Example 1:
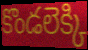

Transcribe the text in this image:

కొండలెక్కి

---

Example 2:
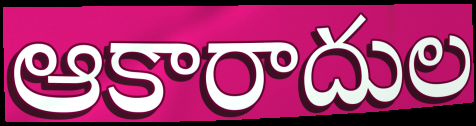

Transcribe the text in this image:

ఆకారాదుల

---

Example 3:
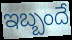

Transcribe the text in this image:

ఇబ్బందే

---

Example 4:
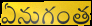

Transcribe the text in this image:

ఏనుగంత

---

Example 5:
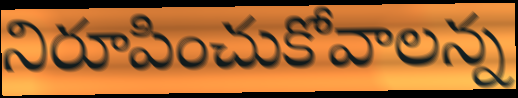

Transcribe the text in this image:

నిరూపించుకోవాలన్న